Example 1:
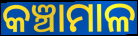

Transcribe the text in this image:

କଞ୍ଚାମାଳ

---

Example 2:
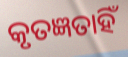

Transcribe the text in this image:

କୃତଜ୍ଞତାହିଁ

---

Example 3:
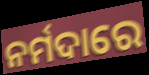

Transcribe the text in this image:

ନର୍ମଦାରେ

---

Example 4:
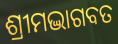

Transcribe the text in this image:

ଶ୍ରୀମଦ୍ଭାଗବତ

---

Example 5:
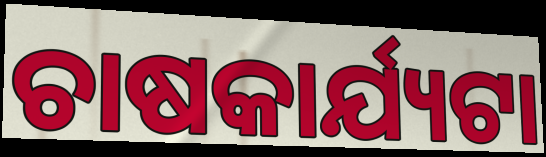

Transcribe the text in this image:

ଚାଷକାର୍ଯ୍ୟଟା